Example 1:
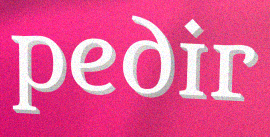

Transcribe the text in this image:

pedir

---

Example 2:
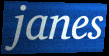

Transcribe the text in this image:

janes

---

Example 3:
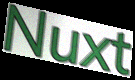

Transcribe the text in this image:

Nuxt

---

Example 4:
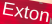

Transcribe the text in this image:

Exton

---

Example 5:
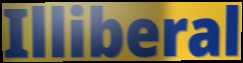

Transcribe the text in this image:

Illiberal